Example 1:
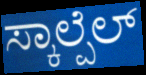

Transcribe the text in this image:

ಸ್ಕಾಲ್ಪೆಲ್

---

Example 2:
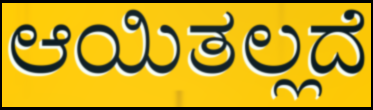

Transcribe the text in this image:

ಆಯಿತಲ್ಲದೆ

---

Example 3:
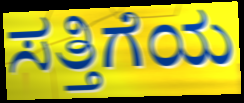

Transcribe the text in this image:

ಸತ್ತಿಗೆಯ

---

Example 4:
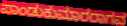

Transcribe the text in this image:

ಪಾಂಡುಕುಮಾರರಾಗವ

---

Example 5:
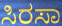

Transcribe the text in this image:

ಸಿರಸಾ